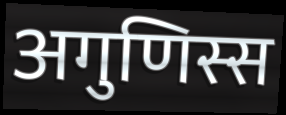
अगुणिस्स